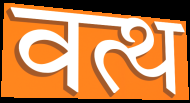
वत्थ